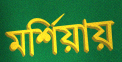
মর্শিয়ায়